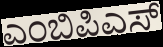
ಎಂಬಿಪಿಎಸ್